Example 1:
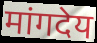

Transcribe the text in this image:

मांगदेय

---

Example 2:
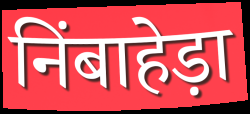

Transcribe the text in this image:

निंबाहेड़ा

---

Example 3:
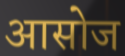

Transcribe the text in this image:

आसोज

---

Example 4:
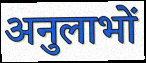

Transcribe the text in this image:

अनुलाभों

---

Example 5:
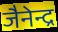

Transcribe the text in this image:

जैनेन्द्र